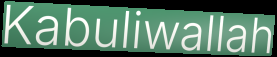
Kabuliwallah